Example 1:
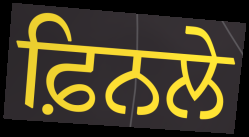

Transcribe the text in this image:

ਫ਼ਿਨਲੇ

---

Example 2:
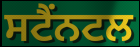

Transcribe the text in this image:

ਸਟੈਂਨਟਲ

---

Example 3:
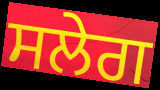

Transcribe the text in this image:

ਸਲੇਗ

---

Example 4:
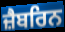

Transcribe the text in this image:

ਜ਼ੈਬਰਿਨ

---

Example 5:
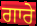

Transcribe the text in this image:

ਗਾਰੇ